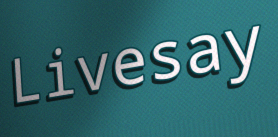
Livesay